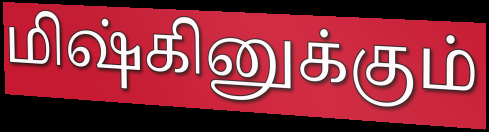
மிஷ்கினுக்கும்